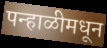
पन्हाळीमधून